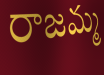
రాజమ్మ